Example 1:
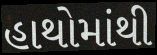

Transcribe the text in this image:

હાથોમાંથી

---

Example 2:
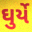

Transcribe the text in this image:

ઘુર્યે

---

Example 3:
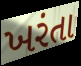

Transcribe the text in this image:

ખરંતા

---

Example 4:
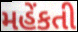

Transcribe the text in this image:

મહેંકતી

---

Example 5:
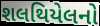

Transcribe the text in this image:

શલથિયેલનો